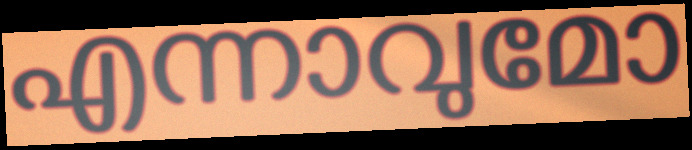
എന്നാവുമോ